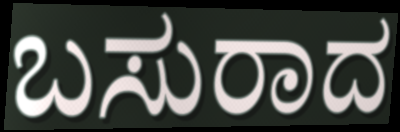
ಬಸುರಾದ